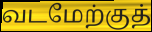
வடமேற்குத்